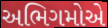
અભિગમોએ